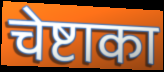
चेष्टाका